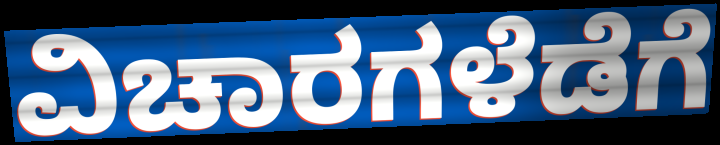
ವಿಚಾರಗಳೆಡೆಗೆ